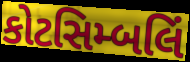
કોટસિમ્બલિં